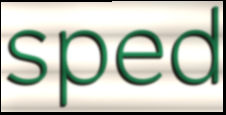
sped